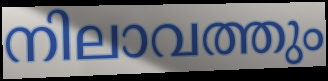
നിലാവത്തും